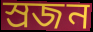
স্ৰজন